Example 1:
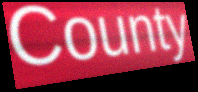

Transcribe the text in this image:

County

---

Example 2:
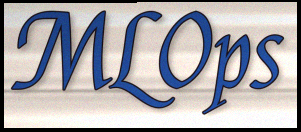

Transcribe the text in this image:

MLOps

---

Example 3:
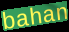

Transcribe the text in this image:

bahan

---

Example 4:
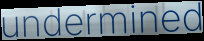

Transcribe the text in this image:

undermined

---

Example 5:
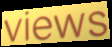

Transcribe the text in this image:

views